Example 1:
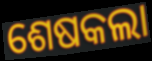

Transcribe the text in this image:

ଶେଷକଲା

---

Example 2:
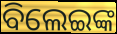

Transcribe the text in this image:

ବିଲେଇଙ୍କ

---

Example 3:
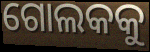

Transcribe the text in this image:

ଗୋଲକକୁ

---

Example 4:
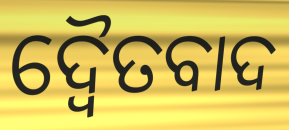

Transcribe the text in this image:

ଦ୍ୱୈତବାଦ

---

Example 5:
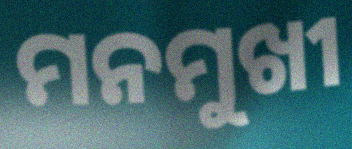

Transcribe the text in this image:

ମନମୁଖୀ